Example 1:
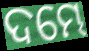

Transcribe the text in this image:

ଦମ୍ଭେ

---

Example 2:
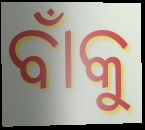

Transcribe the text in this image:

ବାଁକୁ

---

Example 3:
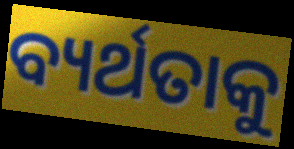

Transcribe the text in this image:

ବ୍ୟର୍ଥତାକୁ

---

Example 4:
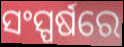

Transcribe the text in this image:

ସଂସ୍ପର୍ଷରେ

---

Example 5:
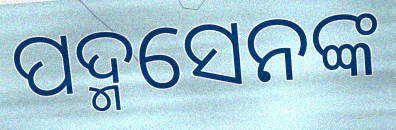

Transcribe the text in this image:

ପଦ୍ମସେନଙ୍କ